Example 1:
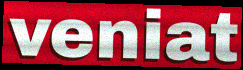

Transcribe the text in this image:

veniat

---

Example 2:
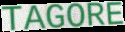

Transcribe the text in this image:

TAGORE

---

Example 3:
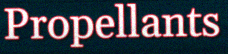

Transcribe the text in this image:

Propellants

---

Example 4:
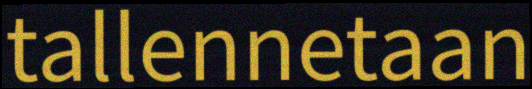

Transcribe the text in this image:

tallennetaan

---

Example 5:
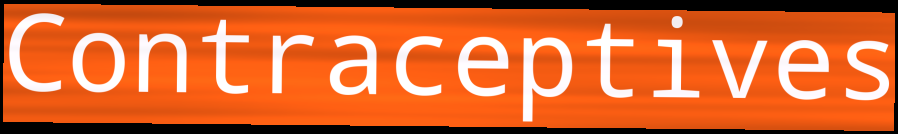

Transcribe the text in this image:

Contraceptives